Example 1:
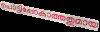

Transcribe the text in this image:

പൊട്ടിപ്പോകാത്തതുമായ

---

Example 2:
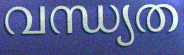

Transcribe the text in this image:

വന്ധ്യത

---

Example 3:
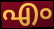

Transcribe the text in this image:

എം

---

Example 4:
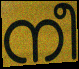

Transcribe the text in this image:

നീ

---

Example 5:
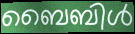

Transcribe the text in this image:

ബൈബിൾ